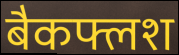
बैकफ्लश